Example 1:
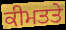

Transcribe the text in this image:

ਕੀਮਤਤੇ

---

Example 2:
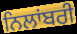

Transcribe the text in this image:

ਨਿਲਾਂਬਰੀ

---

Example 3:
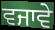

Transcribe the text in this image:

ਵਜਾਵੇ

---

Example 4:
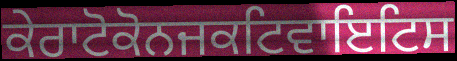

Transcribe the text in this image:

ਕੇਰਾਟੋਕੋਨਜਕਟਿਵਾਇਟਿਸ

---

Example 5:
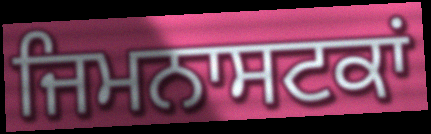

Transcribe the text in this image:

ਜਿਮਨਾਸਟਕਾਂ